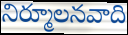
నిర్మూలనవాది